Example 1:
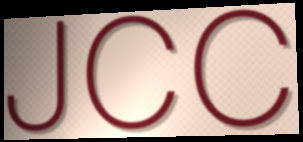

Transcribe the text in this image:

JCC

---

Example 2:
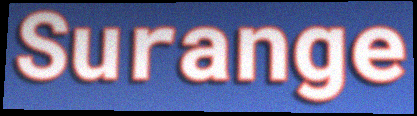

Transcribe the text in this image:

Surange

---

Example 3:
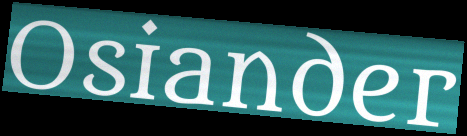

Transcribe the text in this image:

Osiander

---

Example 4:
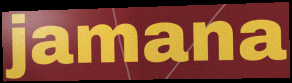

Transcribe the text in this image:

jamana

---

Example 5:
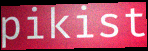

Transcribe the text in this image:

pikist